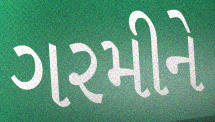
ગરમીને